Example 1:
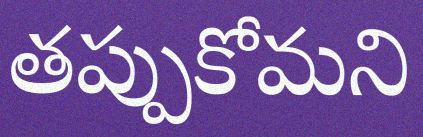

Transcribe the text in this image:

తప్పుకోమని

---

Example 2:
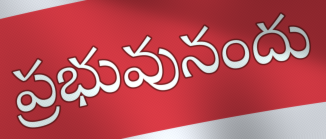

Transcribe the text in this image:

ప్రభువునందు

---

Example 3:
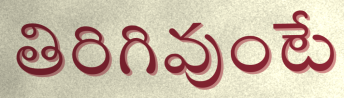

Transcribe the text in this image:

తిరిగివుంటే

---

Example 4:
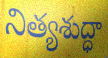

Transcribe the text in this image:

నిత్యశుద్ధా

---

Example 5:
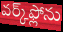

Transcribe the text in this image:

వర్క్‌ఫ్లోను